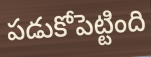
పడుకోపెట్టింది